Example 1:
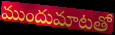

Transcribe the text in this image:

ముందుమాటతో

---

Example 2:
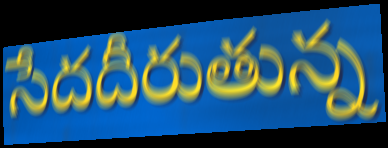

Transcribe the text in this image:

సేదదీరుతున్న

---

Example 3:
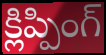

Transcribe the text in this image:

క్లిప్పింగ్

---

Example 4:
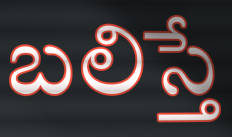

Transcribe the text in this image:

బలిస్తే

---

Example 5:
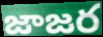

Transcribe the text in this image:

జాజర